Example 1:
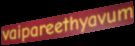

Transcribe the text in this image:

vaipareethyavum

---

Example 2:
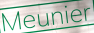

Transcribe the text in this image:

Meunier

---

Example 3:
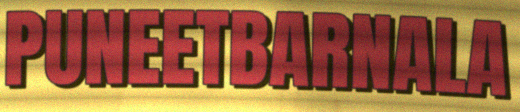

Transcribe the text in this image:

PUNEETBARNALA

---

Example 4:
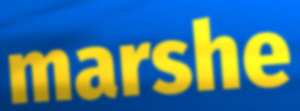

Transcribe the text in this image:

marshe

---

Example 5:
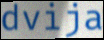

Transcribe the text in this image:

dvija